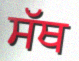
ਸੱਥ